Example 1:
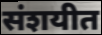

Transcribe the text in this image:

संशयीत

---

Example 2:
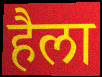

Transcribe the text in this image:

हैला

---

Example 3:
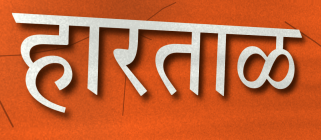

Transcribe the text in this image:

हारताळ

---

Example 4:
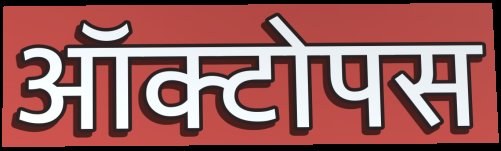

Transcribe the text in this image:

ऑक्टोपस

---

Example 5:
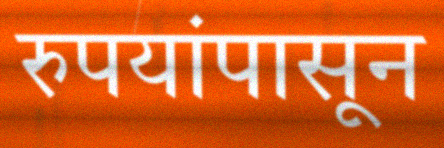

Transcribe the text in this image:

रुपयांपासून